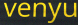
venyu